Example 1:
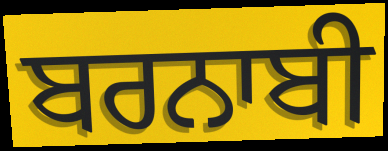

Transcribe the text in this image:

ਬਰਨਾਬੀ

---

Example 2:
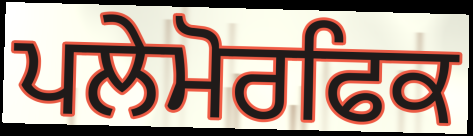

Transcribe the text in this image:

ਪਲੇਮੋਰਫਿਕ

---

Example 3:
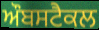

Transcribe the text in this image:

ਔਬਸਟੈਕਲ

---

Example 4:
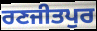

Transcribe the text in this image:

ਰਣਜੀਤਪੁਰ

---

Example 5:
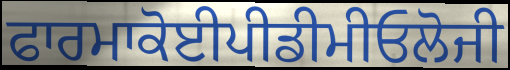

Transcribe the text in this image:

ਫਾਰਮਾਕੋਈਪੀਡੀਮੀਓਲੋਜੀ